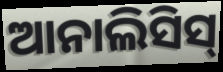
ଆନାଲିସିସ୍